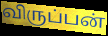
விருப்பன்